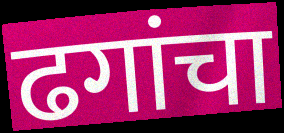
ढगांचा